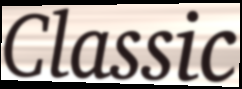
Classic